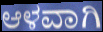
ಆಳವಾಗಿ